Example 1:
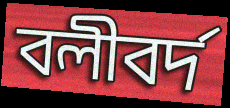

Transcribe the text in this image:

বলীবর্দ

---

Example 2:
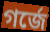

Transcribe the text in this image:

গর্জে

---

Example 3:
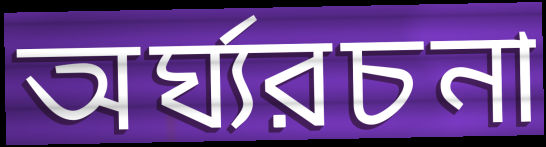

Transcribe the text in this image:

অর্ঘ্যরচনা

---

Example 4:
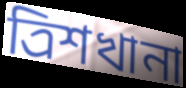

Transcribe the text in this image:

ত্রিশখানা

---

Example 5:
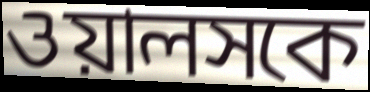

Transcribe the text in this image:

ওয়ালসকে